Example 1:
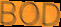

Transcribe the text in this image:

BOD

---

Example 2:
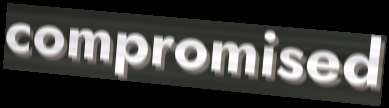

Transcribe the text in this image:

compromised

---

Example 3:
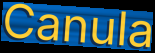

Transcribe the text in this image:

Canula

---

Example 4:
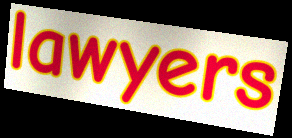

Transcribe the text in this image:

lawyers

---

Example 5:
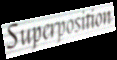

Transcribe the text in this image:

Superposition